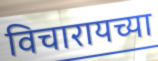
विचारायच्या